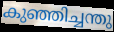
കുഞ്ഞിച്ചന്തു